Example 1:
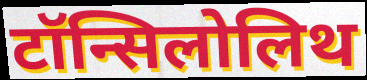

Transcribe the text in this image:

टॉन्सिलोलिथ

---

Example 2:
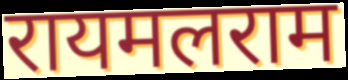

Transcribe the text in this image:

रायमलराम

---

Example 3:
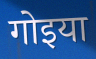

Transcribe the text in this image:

गोइया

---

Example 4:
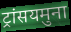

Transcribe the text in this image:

ट्रांसयमुना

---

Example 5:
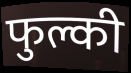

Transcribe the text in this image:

फुल्की